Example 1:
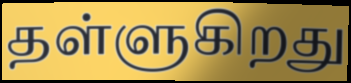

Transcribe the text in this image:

தள்ளுகிறது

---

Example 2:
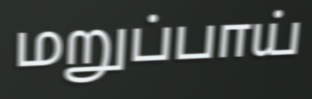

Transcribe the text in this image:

மறுப்பாய்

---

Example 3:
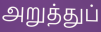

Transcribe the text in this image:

அறுத்துப்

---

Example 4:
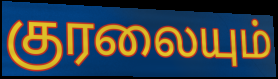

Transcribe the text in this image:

குரலையும்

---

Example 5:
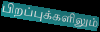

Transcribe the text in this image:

பிறப்புக்களிலும்